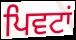
ਪਿਵਟਾਂ